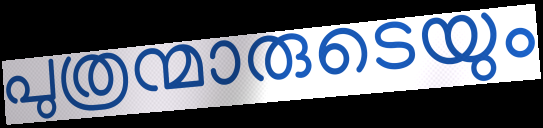
പുത്രന്മാരുടെയും